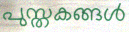
പുസ്തകങ്ങൾ